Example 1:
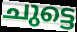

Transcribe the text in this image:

ചുട്ടെ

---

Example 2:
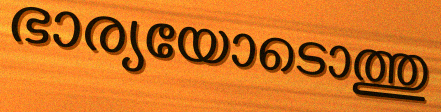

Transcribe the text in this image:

ഭാര്യയോടൊത്തു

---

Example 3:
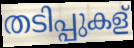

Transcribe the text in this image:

തടിപ്പുകള്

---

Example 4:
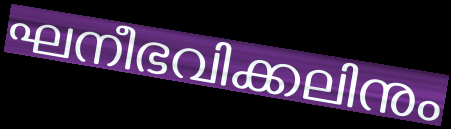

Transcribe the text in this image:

ഘനീഭവിക്കലിനും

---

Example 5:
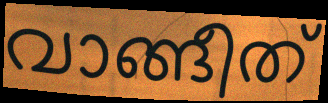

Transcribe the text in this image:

വാങ്ങീത്